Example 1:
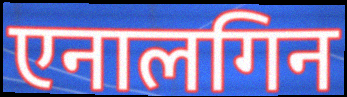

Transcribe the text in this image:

एनालगिन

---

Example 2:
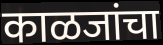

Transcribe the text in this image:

काळजांचा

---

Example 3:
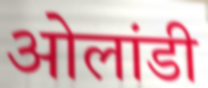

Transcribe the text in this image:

ओलांडी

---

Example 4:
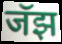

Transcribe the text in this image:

जॅझ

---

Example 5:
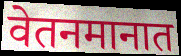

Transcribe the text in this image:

वेतनमानात